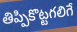
తిప్పికొట్టగలిగే